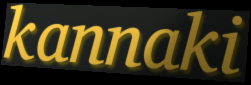
kannaki